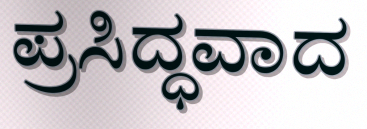
ಪ್ರಸಿದ್ಧವಾದ